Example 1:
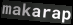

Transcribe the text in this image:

makarap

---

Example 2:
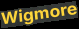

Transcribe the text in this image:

Wigmore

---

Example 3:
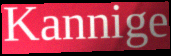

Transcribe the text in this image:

Kannige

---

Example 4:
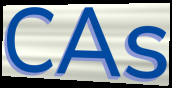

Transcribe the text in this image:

CAs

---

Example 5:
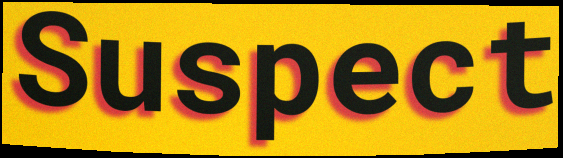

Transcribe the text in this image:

Suspect